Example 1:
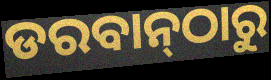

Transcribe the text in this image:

ଡରବାନ୍‌ଠାରୁ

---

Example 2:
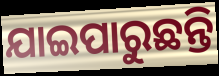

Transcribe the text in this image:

ଯାଇପାରୁଛନ୍ତି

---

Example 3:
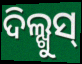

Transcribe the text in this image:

ଦିଲ୍ଖୁସ୍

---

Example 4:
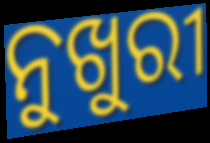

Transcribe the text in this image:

ନୁଖୁରୀ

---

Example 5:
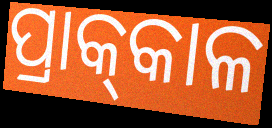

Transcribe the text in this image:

ପ୍ରାକ୍‌କାଳ